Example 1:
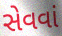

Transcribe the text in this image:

સેવવાં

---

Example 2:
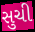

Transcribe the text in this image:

સુચી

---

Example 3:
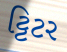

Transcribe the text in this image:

ટ્ટિટર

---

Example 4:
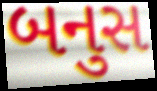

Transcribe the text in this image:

બનુસ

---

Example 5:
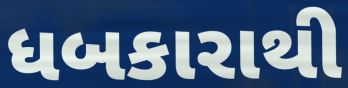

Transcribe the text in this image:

ધબકારાથી